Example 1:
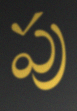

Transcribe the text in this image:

పు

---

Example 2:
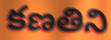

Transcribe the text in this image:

కణతిని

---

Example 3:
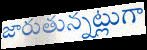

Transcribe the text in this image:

జారుతున్నట్లుగా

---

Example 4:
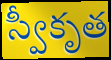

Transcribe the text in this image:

స్వీకృత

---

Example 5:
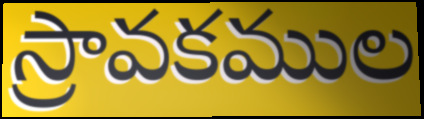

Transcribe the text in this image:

స్రావకముల